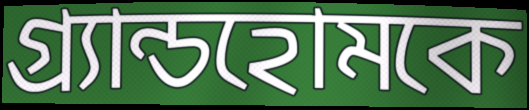
গ্র্যান্ডহোমকে